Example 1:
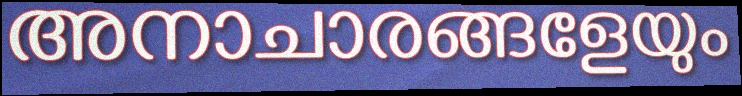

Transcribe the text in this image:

അനാചാരങ്ങളേയും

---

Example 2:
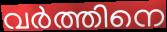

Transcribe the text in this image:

വർത്തിനെ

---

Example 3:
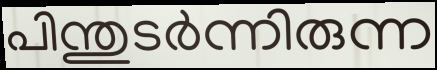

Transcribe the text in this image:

പിന്തുടർന്നിരുന്ന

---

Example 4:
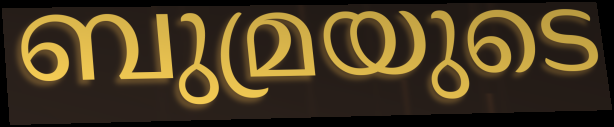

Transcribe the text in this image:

ബുമ്രയുടെ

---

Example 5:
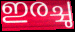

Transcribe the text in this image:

ഇരച്ചു